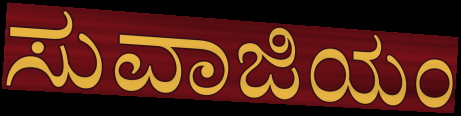
ಸುವಾಜಿಯಂ